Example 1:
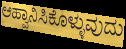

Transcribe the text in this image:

ಆಹ್ವಾನಿಸಿಕೊಳ್ಳುವುದು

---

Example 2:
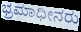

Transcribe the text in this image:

ಭ್ರಮಾಧೀನರು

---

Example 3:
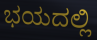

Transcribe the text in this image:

ಭಯದಲ್ಲಿ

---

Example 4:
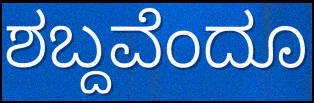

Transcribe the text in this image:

ಶಬ್ದವೆಂದೂ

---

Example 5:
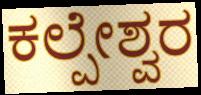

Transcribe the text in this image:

ಕಲ್ಪೇಶ್ವರ